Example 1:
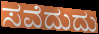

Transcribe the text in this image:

ಸವೆದುದು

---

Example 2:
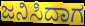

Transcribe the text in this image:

ಜನಿಸಿದಾಗ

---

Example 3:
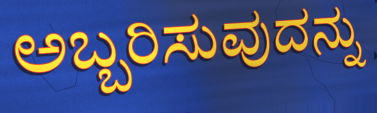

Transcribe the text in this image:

ಅಬ್ಬರಿಸುವುದನ್ನು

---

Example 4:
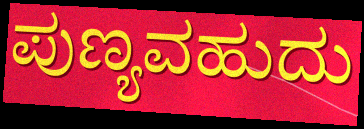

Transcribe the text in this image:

ಪುಣ್ಯವಹುದು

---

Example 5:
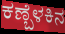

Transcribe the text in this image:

ಕಣ್ಬೆಳಕಿನ